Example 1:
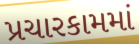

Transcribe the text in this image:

પ્રચારકામમાં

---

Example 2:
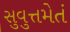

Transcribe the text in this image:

સુવુત્તમેતં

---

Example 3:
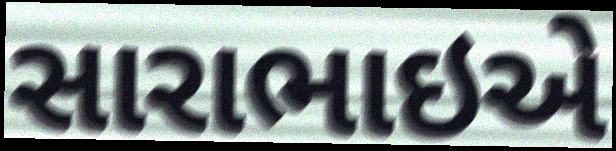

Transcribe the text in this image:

સારાભાઇએ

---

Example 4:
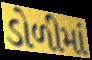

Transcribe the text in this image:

ડોળીમાં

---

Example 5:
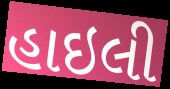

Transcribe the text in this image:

હાઇલી